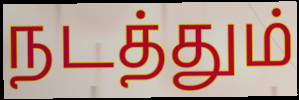
நடத்தும்